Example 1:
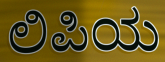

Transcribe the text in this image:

ಲಿಪಿಯ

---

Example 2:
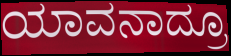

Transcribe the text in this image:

ಯಾವನಾದ್ರೂ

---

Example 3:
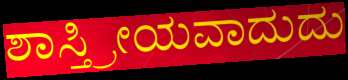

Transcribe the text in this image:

ಶಾಸ್ತ್ರೀಯವಾದುದು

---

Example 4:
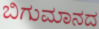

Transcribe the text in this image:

ಬಿಗುಮಾನದ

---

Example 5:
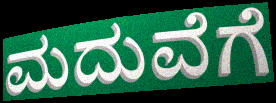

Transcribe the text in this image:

ಮದುವೆಗೆ